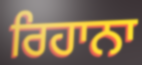
ਰਿਹਾਨਾ